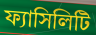
ফ্যাসিলিটি